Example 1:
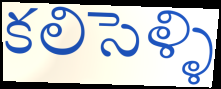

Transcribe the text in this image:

కలిసెళ్ళి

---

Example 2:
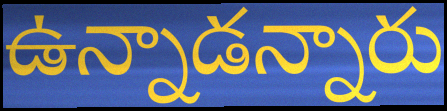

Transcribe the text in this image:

ఉన్నాడన్నారు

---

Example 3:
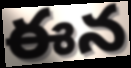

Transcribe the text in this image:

ఈన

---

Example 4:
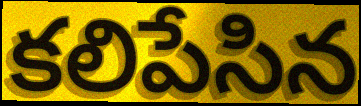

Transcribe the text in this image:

కలిపేసిన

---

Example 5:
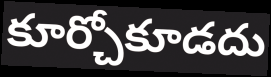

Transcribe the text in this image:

కూర్చోకూడదు